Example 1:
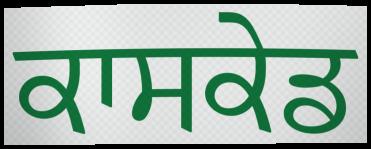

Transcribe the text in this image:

ਕਾਸਕੇਡ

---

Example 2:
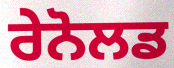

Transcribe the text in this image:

ਰੇਨੋਲਡ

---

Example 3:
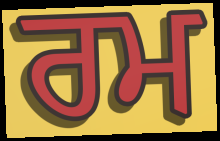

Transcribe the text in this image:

ਰਮ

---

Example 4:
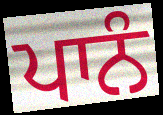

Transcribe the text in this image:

ਪਾਨੰ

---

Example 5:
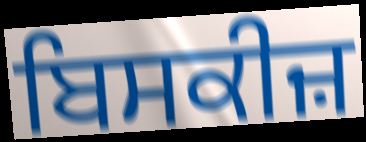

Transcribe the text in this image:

ਬਿਸਕੀਜ਼